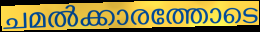
ചമൽക്കാരത്തോടെ